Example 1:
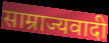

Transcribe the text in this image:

साम्राज्यवादी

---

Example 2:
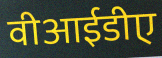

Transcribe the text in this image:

वीआईडीए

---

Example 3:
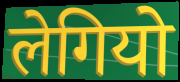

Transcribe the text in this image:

लेगियो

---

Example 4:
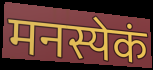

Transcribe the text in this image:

मनस्येकं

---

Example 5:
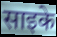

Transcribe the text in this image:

साइके